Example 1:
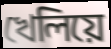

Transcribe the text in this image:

খেলিয়ে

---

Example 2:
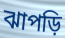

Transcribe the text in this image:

ঝাপড়ি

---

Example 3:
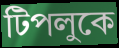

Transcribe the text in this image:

টিপলুকে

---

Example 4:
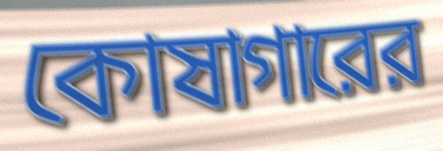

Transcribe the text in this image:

কোষাগারের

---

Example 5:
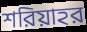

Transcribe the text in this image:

শরিয়াহর